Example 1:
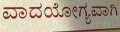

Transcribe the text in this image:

ವಾದಯೋಗ್ಯವಾಗಿ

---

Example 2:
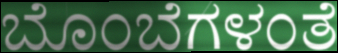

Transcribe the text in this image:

ಬೊಂಬೆಗಳಂತೆ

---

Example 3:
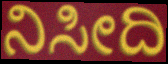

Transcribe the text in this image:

ನಿಸೀದಿ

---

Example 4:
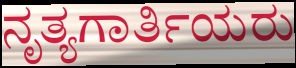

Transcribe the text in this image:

ನೃತ್ಯಗಾರ್ತಿಯರು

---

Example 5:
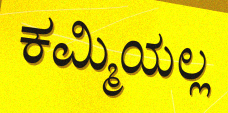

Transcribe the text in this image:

ಕಮ್ಮಿಯಲ್ಲ